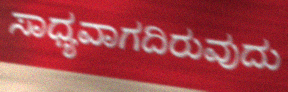
ಸಾಧ್ಯವಾಗದಿರುವುದು